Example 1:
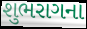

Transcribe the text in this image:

શુભરાગના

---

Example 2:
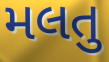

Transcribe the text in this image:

મલતુ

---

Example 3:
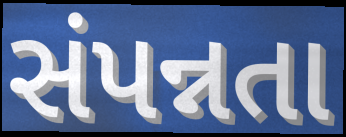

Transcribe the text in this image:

સંપન્નતા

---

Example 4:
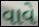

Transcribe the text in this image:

વાવે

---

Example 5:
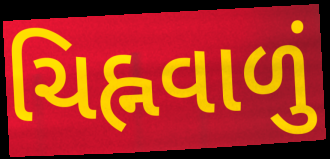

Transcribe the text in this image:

ચિહ્નવાળું